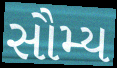
સૌમ્ય